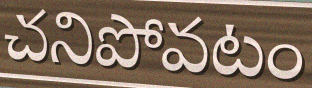
చనిపోవటం